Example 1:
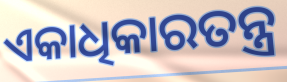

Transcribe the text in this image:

ଏକାଧିକାରତନ୍ତ୍ର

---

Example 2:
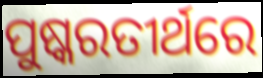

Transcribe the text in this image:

ପୁଷ୍କରତୀର୍ଥରେ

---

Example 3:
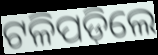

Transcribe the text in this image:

ଟଳିପଡ଼ିଲେ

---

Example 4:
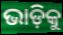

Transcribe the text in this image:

ଭାଡ଼ିକୁ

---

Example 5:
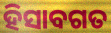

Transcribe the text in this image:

ହିସାବଗତ